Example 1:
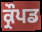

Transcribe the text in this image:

ਕ੍ਰੌਪਡ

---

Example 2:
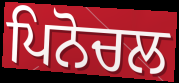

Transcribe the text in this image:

ਪਿਨੋਚਲ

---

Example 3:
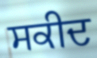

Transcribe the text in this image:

ਸਕੀਦ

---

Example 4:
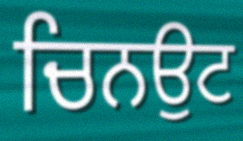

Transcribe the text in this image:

ਚਿਨਉਟ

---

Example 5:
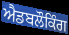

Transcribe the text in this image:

ਐਡਬਲੌਕਿੰਗ